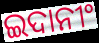
ଇଦାନୀଂ